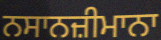
ਨਸਾਨਜ਼ੀਮਾਨਾ